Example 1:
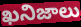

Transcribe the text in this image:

ఖనిజాలు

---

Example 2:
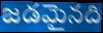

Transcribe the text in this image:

జడమైనది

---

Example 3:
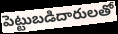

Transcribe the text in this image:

పెట్టుబడిదారులతో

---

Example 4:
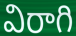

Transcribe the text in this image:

విరాగి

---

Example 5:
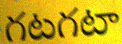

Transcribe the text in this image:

గటగటా